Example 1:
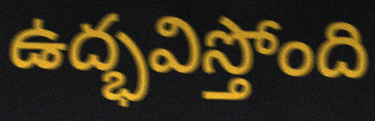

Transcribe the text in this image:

ఉద్భవిస్తోంది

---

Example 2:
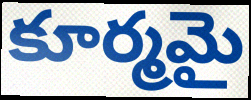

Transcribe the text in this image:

కూర్మమై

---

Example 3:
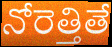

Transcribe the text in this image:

నోరెత్తితే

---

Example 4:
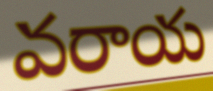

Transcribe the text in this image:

వరాయ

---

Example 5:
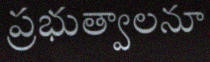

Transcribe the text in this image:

ప్రభుత్వాలనూ